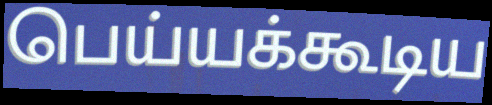
பெய்யக்கூடிய